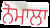
ਨੋਮਾਲਾ